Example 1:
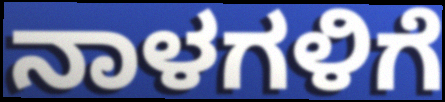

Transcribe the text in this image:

ನಾಳಗಳಿಗೆ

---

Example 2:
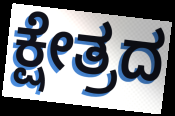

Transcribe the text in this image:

ಕ್ಷೇತ್ರದ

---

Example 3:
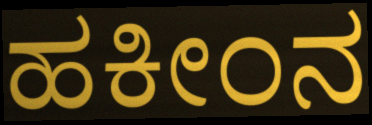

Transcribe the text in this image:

ಹಕೀಂನ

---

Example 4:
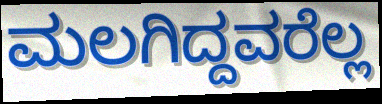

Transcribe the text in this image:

ಮಲಗಿದ್ದವರೆಲ್ಲ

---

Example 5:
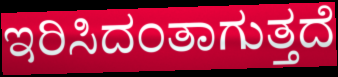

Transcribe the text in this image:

ಇರಿಸಿದಂತಾಗುತ್ತದೆ